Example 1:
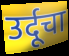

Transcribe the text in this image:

उर्दूचा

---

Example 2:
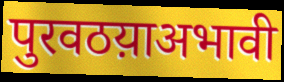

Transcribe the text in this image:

पुरवठय़ाअभावी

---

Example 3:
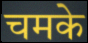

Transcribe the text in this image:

चमके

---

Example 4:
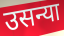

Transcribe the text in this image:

उसन्या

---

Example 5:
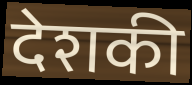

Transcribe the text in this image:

देशकी